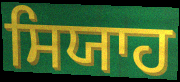
ਸਿਯਾਹ